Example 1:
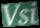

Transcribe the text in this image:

Vsi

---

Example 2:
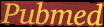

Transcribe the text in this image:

Pubmed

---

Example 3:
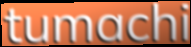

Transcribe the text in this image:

tumachi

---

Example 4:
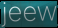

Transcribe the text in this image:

jeew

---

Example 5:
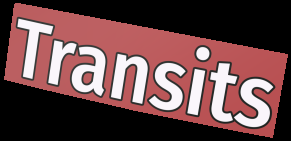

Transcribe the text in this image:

Transits